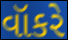
વૉકરે